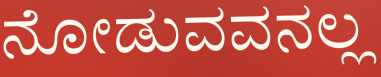
ನೋಡುವವನಲ್ಲ